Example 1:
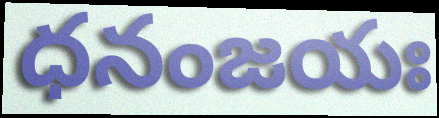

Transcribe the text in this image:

ధనంజయః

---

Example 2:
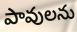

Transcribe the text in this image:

పావులను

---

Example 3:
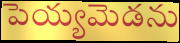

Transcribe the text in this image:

పెయ్యమెడను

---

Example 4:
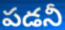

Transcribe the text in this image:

పడనీ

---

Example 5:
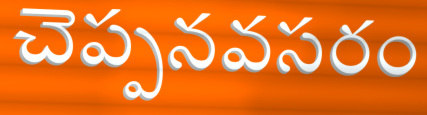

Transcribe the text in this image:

చెప్పనవసరం